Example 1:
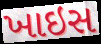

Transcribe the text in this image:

ખાઇસ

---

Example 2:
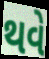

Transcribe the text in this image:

થવે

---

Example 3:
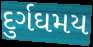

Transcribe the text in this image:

દુર્ગઘમય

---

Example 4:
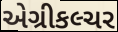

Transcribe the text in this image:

એગ્રીકલ્ચર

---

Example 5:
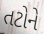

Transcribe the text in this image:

તટોને